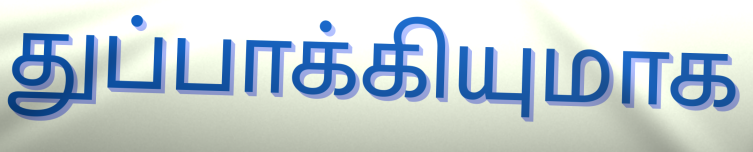
துப்பாக்கியுமாக